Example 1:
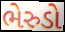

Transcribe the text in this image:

ભેરુડો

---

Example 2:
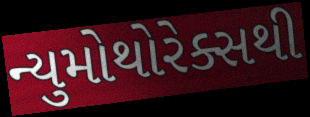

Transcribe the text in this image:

ન્યુમોથોરેક્સથી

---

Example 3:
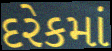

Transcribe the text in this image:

દરેકમાં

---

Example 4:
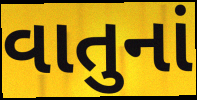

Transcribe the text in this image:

વાતુનાં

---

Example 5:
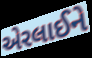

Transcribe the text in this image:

એરલાઈને